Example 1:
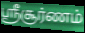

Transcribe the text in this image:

ஸ்ரீசூர்ணம்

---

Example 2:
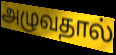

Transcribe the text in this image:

அழுவதால்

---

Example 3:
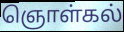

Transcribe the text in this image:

ஞொள்கல்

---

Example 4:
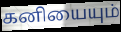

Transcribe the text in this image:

கனியையும்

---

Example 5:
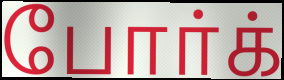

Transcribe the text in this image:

போர்க்